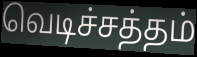
வெடிச்சத்தம்